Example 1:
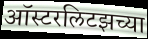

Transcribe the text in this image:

ऑस्टरलिटझच्या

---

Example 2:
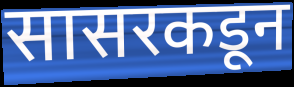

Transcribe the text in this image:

सासरकडून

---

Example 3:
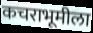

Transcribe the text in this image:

कचराभूमीला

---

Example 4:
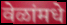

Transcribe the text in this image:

वेळांमधे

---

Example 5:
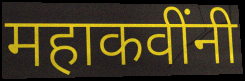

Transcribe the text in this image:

महाकवींनी